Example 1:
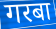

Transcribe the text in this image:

गरबा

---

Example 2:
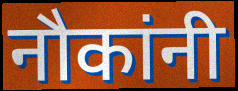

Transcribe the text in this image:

नौकांनी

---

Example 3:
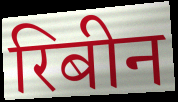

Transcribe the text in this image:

रिबीन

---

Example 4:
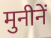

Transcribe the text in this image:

मुनीनें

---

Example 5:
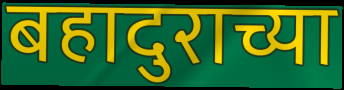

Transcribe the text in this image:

बहादुराच्या